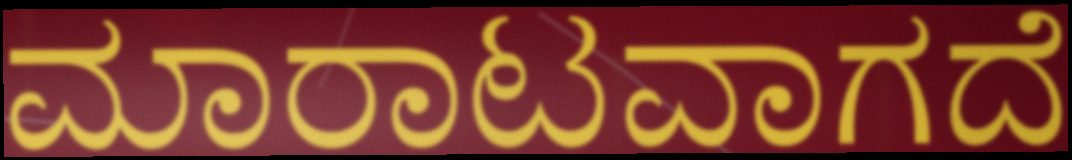
ಮಾರಾಟವಾಗದೆ